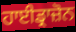
ਹਾਈਡ੍ਰਾਜ਼ੋਨ